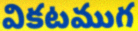
వికటముగ